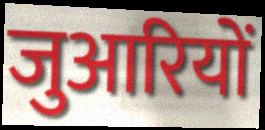
जुआरियों